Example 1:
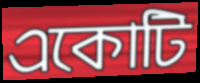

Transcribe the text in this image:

একোটি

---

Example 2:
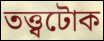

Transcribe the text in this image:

তত্ত্বটোক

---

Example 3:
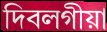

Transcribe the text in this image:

দিবলগীয়া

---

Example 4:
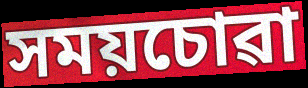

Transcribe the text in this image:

সময়চোৱা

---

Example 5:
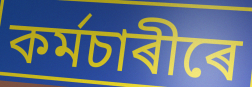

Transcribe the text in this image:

কৰ্মচাৰীৰে